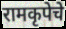
रामकृपेचे